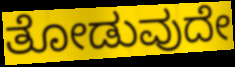
ತೋಡುವುದೇ